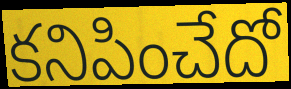
కనిపించేదో